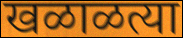
खळाळत्या